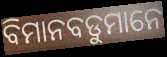
ବିମାନବଡୁମାନେ